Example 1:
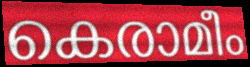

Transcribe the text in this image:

കെരാമീം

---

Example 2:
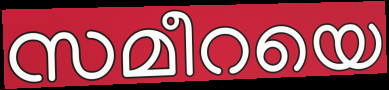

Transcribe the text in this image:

സമീറയെ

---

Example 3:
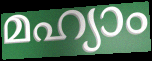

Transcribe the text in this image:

മഹ്യാം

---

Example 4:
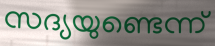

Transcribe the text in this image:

സദ്യയുണ്ടെന്ന്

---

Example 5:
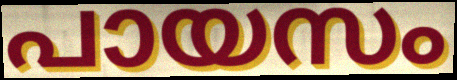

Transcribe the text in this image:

പായസം